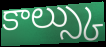
కాల్స్కు